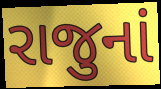
રાજુનાં